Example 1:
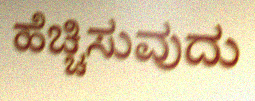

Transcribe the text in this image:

ಹೆಚ್ಚಿಸುವುದು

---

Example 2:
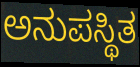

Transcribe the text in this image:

ಅನುಪಸ್ಥಿತ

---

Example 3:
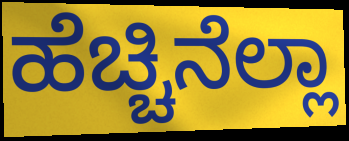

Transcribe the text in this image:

ಹೆಚ್ಚಿನೆಲ್ಲಾ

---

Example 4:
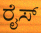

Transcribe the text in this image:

ರೈಸ್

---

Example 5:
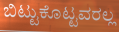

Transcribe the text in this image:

ಬಿಟ್ಟುಕೊಟ್ಟವರಲ್ಲ